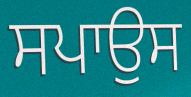
ਸਪਾਉਸ